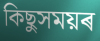
কিছুসময়ৰ